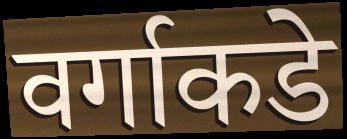
वर्गाकडे